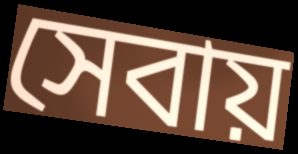
সেবায়